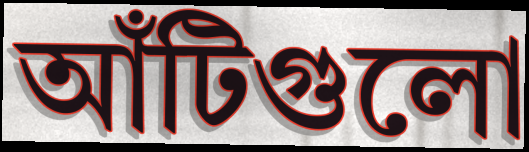
আঁটিগুলো